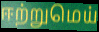
ஈற்றுமெய்